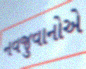
નવજુવાનોએ